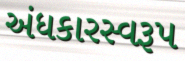
અંધકારસ્વરૂપ